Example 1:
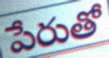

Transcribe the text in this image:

పేరుతో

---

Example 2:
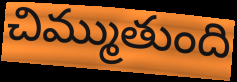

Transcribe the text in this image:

చిమ్ముతుంది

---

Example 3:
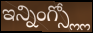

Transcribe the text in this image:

ఇన్నింగ్స్ల్లో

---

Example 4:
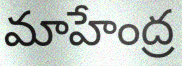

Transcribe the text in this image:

మాహేంద్ర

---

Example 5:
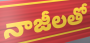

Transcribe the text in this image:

నాజీలతో